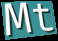
Mt